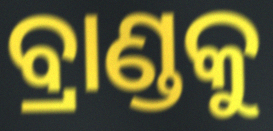
ବ୍ରାଣ୍ଡକୁ